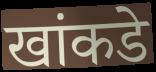
खांकडे